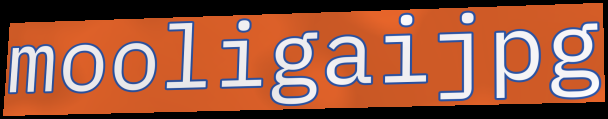
mooligaijpg